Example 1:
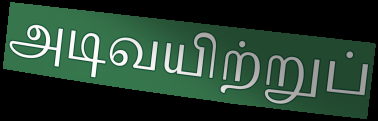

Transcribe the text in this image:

அடிவயிற்றுப்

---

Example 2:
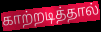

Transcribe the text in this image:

காற்றடித்தால்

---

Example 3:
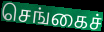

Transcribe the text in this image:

செங்கைச்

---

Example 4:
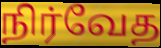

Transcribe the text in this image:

நிர்வேத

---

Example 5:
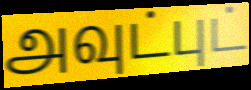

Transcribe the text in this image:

அவுட்புட்